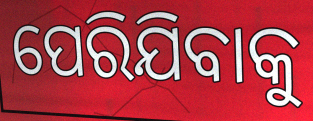
ପେରିଯିବାକୁ